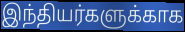
இந்தியர்களுக்காக